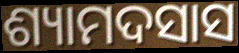
ଶ୍ୟାମଦସାସ